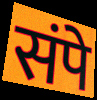
संपे